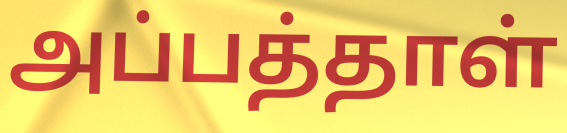
அப்பத்தாள்